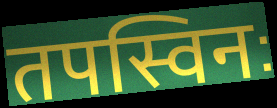
तपस्विनः